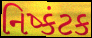
નિષ્કંટક